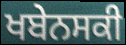
ਖਬੇਨਸਕੀ